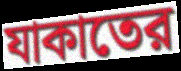
যাকাতের